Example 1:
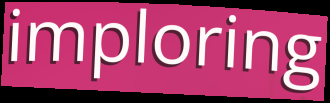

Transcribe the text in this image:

imploring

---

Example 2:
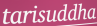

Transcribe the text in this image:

tarisuddha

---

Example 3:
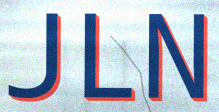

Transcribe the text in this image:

JLN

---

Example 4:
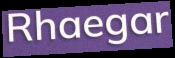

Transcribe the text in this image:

Rhaegar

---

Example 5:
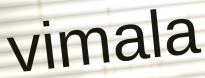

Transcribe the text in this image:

vimala